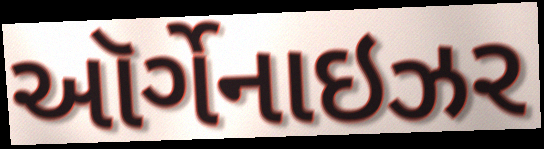
ઑર્ગેનાઇઝર